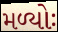
મળ્યોઃ